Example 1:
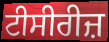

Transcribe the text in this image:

ਟੀਸੀਰੀਜ਼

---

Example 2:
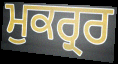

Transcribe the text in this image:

ਮੁਕਰ੍ਰਰ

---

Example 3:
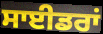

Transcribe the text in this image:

ਸਾਈਡਰਾਂ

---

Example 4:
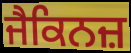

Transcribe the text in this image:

ਜੈਕਿਨਜ਼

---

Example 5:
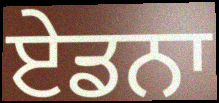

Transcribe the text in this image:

ਏਡਨਾ